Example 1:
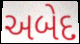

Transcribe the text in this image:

અબેદ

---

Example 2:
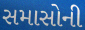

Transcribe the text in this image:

સમાસોની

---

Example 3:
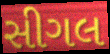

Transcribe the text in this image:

સીગલ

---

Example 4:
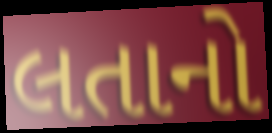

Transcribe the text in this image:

લતાનો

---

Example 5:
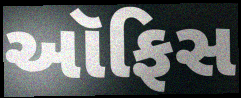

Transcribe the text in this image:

આૅફિસ